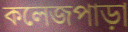
কলেজপাড়া